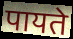
पायते